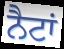
ਨੈਟਾਂ